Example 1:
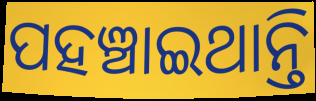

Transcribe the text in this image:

ପହଞ୍ଚାଇଥାନ୍ତି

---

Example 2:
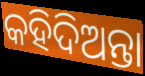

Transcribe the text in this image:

କହିଦିଅନ୍ତା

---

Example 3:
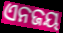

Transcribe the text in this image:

ଏନଜୟ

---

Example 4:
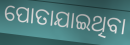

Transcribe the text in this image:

ପୋତାଯାଇଥିବା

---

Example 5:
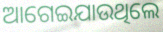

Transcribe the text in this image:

ଆଗେଇଯାଉଥିଲେ